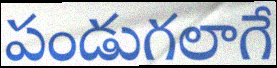
పండుగలాగే